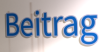
Beitrag